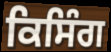
ਕਿਸਿੰਗ